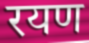
रयण